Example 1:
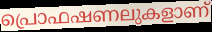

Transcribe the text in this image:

പ്രൊഫഷണലുകളാണ്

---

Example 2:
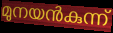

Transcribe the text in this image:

മുനയൻകുന്ന്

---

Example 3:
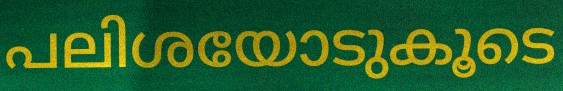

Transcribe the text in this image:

പലിശയോടുകൂടെ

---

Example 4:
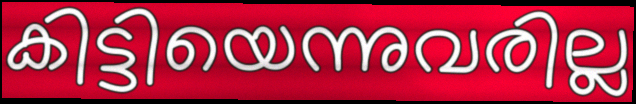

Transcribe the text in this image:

കിട്ടിയെന്നുവരില്ല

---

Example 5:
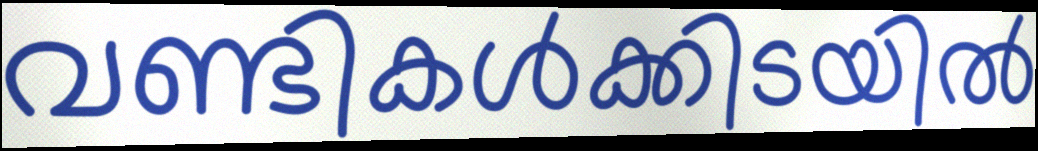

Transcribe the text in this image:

വണ്ടികൾക്കിടയിൽ